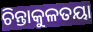
ଚିନ୍ତାକୁଳତୟା